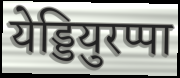
येड्डियुरप्पा